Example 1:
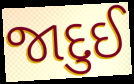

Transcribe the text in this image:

જાદુઈ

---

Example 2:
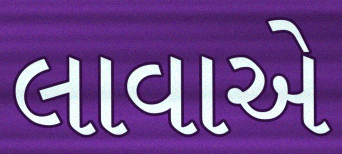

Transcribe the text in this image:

લાવાએ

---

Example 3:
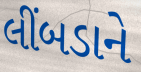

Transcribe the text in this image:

લીંબડાને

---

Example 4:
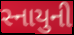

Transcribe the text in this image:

સ્નાયુની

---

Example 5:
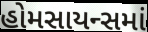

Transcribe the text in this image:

હોમસાયન્સમાં